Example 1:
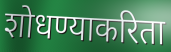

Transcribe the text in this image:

शोधण्याकरिता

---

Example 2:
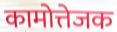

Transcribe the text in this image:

कामोत्तेजक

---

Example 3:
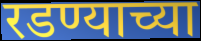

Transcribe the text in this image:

रडण्याच्या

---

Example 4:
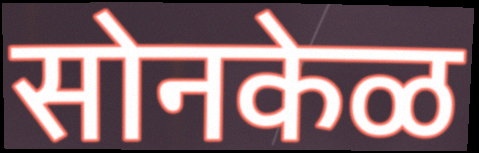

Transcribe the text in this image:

सोनकेळ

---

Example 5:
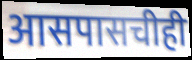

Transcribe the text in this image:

आसपासचीही